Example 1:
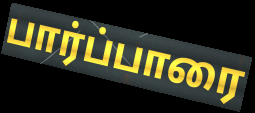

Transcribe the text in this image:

பார்ப்பாரை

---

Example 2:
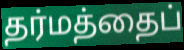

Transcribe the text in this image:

தர்மத்தைப்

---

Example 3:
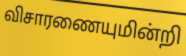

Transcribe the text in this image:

விசாரணையுமின்றி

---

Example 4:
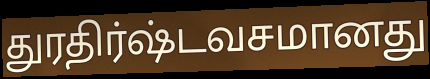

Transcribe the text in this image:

துரதிர்ஷ்டவசமானது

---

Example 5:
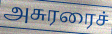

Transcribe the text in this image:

அசுரரைச்